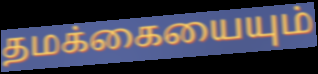
தமக்கையையும்